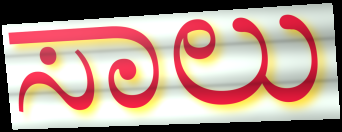
ಸಾಲು